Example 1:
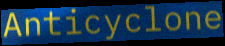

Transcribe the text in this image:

Anticyclone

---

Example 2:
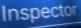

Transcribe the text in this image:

Inspector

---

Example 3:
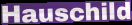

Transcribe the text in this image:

Hauschild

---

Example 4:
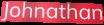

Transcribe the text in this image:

Johnathan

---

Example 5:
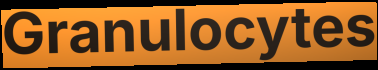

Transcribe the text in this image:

Granulocytes